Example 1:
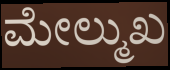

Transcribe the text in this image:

ಮೇಲ್ಮುಖ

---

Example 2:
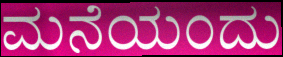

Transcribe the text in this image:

ಮನೆಯಂದು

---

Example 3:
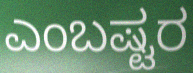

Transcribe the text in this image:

ಎಂಬಷ್ಟರ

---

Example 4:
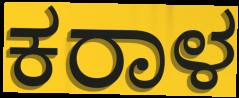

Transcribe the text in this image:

ಕರಾಳ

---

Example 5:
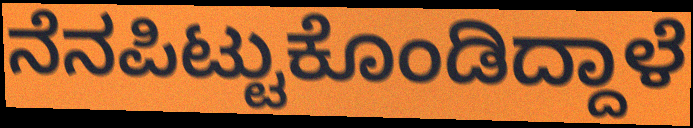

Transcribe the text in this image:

ನೆನಪಿಟ್ಟುಕೊಂಡಿದ್ದಾಳೆ